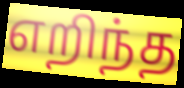
எறிந்த